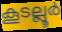
കൂടല്ലൂർ